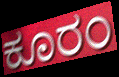
ಕೂರಂ